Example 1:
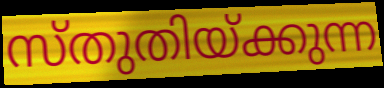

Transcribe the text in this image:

സ്തുതിയ്ക്കുന്ന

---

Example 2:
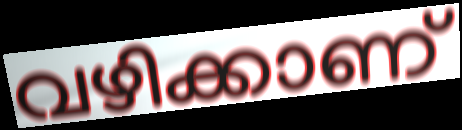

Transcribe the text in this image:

വഴിക്കാണ്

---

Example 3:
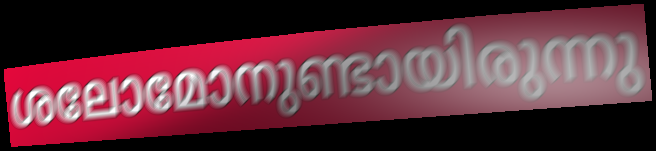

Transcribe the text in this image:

ശലോമോനുണ്ടായിരുന്നു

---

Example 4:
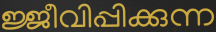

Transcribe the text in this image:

ജ്ജീവിപ്പിക്കുന്ന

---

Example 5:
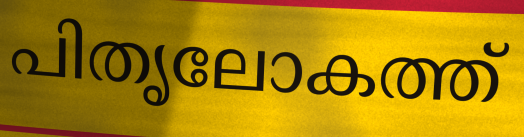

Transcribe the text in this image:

പിതൃലോകത്ത്